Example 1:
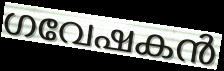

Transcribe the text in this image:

ഗവേഷകൻ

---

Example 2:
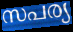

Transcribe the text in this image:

സപര്യ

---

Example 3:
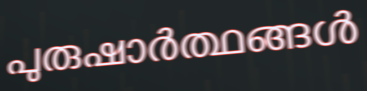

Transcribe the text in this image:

പുരുഷാർത്ഥങ്ങൾ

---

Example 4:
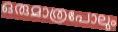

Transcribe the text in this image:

ഒരുമാത്രപോലും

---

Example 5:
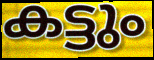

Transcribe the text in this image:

കട്ടും